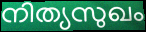
നിത്യസുഖം